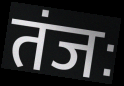
तंजः